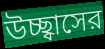
উচ্ছ্বাসের